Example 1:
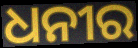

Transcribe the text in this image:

ଧନୀର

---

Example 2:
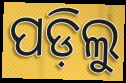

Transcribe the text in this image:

ପଡ଼ିଲୁ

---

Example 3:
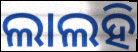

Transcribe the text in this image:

ଲାଲହି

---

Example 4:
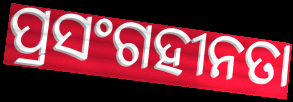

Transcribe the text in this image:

ପ୍ରସଂଗହୀନତା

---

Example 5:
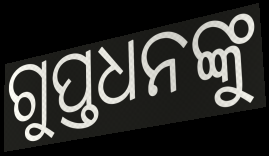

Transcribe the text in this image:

ଗୁପ୍ତଧନଙ୍କୁ